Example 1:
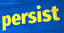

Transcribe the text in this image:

persist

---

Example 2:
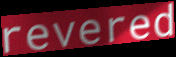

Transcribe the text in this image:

revered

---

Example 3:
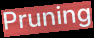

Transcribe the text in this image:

Pruning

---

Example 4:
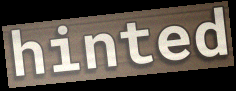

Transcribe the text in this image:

hinted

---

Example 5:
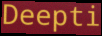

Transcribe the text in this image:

Deepti